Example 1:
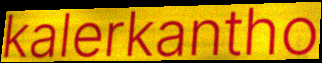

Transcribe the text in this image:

kalerkantho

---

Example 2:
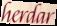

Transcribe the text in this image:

herdar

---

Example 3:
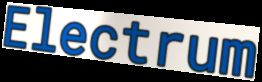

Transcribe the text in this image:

Electrum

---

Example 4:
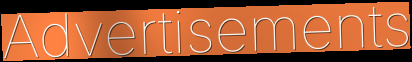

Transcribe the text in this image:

Advertisements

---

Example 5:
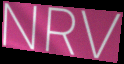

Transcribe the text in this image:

NRV